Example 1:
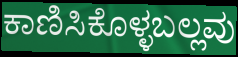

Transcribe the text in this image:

ಕಾಣಿಸಿಕೊಳ್ಳಬಲ್ಲವು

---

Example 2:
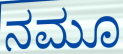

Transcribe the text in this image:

ನಮೂ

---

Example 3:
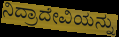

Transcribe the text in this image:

ನಿದ್ರಾದೇವಿಯನ್ನು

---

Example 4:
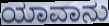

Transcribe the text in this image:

ಯಾವಾನು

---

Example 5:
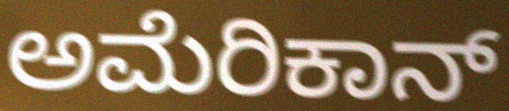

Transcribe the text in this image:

ಅಮೆರಿಕಾನ್